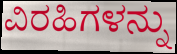
ವಿರಹಿಗಳನ್ನು